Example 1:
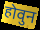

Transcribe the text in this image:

होवुन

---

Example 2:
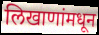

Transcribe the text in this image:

लिखाणांमधून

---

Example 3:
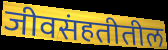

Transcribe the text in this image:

जीवसंहतीतील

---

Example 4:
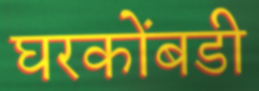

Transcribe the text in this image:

घरकोंबडी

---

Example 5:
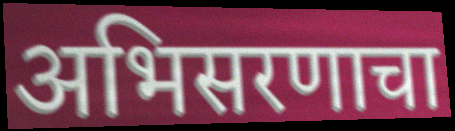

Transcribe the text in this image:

अभिसरणाचा